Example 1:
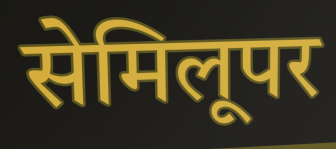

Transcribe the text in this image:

सेमिलूपर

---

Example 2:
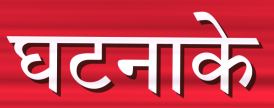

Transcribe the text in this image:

घटनाके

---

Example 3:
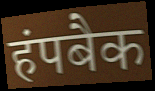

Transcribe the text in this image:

हंपबैक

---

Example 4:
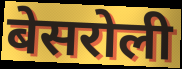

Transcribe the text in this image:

बेसरोली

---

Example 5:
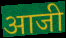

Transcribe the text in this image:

आजी